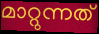
മാറ്റുന്നത്